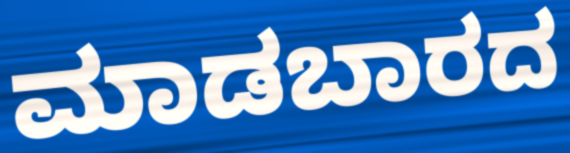
ಮಾಡಬಾರದ